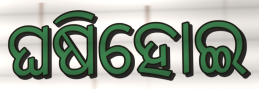
ଘଷିହୋଇ